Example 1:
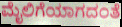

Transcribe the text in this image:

ಮೈಲಿಗೆಯಾಗದಂತೆ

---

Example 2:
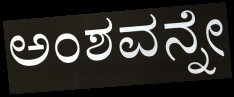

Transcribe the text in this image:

ಅಂಶವನ್ನೇ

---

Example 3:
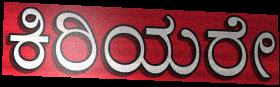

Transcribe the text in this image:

ಕಿರಿಯರೇ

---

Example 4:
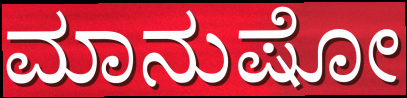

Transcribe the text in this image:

ಮಾನುಷೋ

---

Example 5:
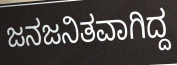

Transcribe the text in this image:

ಜನಜನಿತವಾಗಿದ್ದ